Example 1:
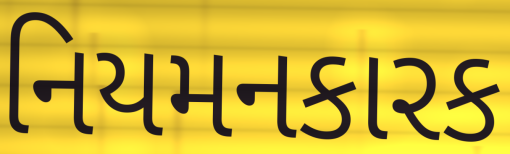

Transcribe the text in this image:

નિયમનકારક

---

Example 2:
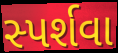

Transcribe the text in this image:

સ્પર્શવા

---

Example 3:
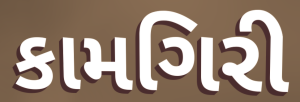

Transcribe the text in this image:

કામગિરી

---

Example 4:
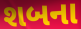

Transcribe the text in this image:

શબના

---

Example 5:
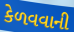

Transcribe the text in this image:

કેળવવાની